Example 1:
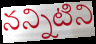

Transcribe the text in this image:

నన్నిటిని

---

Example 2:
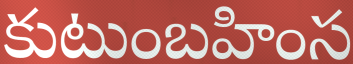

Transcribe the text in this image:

కుటుంబహింస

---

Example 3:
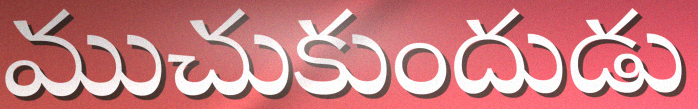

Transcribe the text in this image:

ముచుకుందుడు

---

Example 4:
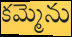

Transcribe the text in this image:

కమ్మెను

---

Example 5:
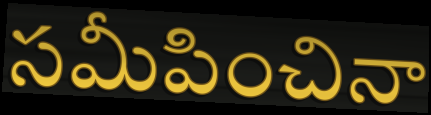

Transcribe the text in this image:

సమీపించినా